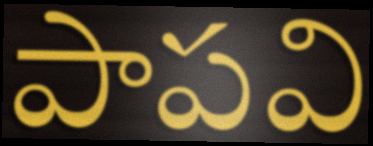
పాపవి